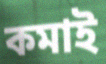
কমাই